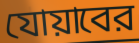
যোয়াবের